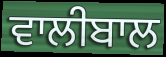
ਵਾਲੀਬਾਲ